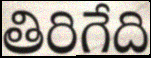
తిరిగేది